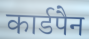
कार्डपैन